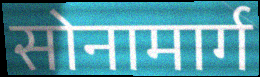
सोनामार्ग